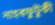
নাহৰফুটুকী